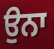
ਉਨਾ